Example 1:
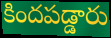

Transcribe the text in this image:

కిందపడ్డారు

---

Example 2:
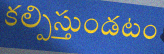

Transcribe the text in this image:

కల్పిస్తుండటం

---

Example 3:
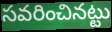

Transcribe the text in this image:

సవరించినట్టు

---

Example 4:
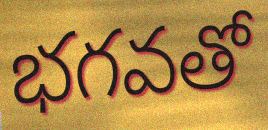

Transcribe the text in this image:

భగవతో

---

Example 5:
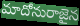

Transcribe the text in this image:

మాదోనురాజైన